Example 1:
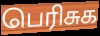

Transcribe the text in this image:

பெரிசுக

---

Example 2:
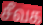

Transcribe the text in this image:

சீவக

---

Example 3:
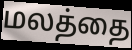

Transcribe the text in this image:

மலத்தை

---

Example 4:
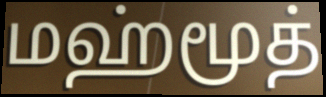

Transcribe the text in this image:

மஹ்மூத்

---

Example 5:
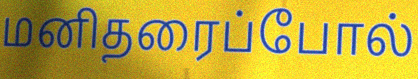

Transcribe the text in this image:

மனிதரைப்போல்